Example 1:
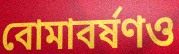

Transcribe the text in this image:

বোমাবর্ষণও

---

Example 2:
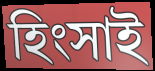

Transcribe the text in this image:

হিংসাই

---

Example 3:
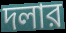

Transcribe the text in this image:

দলার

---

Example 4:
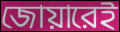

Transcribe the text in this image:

জোয়ারেই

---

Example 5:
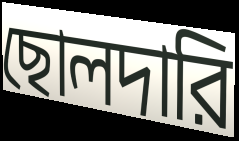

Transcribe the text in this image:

ছোলদারি